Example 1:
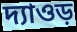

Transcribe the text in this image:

দ্যাওড়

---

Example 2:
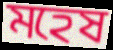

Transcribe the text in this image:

মহেষ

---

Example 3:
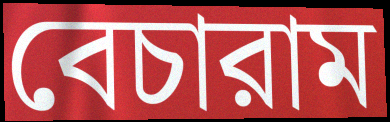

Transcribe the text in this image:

বেচারাম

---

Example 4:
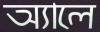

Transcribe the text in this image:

অ্যালে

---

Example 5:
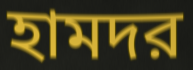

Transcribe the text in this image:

হামদর